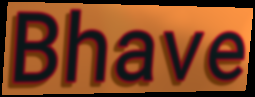
Bhave